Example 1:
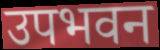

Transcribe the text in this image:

उपभवन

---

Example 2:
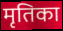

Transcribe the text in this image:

मृतिका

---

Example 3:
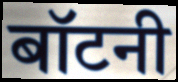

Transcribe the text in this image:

बॉटनी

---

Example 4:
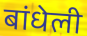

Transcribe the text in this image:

बांधेली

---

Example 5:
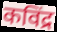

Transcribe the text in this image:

कविंद्र